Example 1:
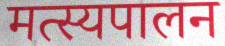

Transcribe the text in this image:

मत्स्यपालन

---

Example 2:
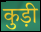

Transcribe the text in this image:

कुड़ी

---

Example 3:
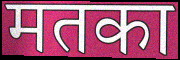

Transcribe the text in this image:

मतका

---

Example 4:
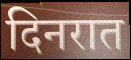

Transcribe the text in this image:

दिनरात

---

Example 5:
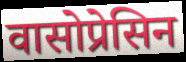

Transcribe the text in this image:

वासोप्रेसिन